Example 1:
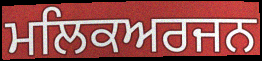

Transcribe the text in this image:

ਮਲਿਕਅਰਜਨ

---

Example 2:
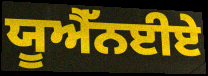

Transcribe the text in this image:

ਯੂਐੱਨਈਏ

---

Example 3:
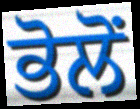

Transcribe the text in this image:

ਭੋਲੋਂ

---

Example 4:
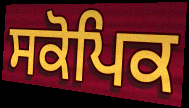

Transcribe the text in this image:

ਸਕੋਪਿਕ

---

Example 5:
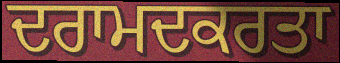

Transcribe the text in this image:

ਦਰਾਮਦਕਰਤਾ